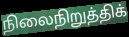
நிலைநிறுத்திக்